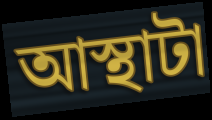
আস্থাটা